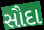
સૌદા